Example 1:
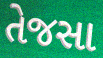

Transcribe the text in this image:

તેજસા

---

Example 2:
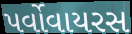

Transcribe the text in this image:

પર્વોવાયરસ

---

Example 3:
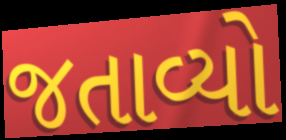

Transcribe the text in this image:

જતાવ્યો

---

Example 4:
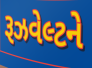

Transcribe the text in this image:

રૂઝવેલ્ટને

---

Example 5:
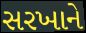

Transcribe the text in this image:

સરખાને